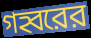
গহ্বরের